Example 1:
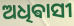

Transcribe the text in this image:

ଅଧିଵାସୀ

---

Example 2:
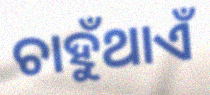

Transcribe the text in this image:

ଚାହୁଁଥାଏଁ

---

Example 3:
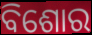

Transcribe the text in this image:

ବିଶୋର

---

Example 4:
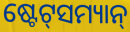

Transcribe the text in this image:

ଷ୍ଟେଟ୍‌ସମ୍ୟାନ୍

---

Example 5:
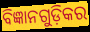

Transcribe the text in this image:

ବିଜ୍ଞାନଗୁଡ଼ିକର